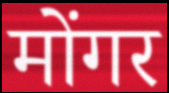
मोंगर